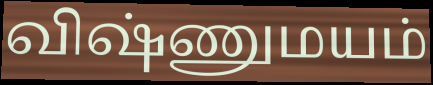
விஷ்ணுமயம்